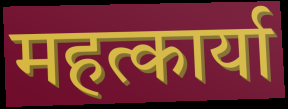
महत्कार्या